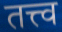
तत्त्व